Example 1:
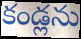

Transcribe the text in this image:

కండ్లను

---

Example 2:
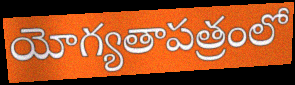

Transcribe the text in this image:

యోగ్యతాపత్రంలో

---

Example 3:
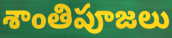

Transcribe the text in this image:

శాంతిపూజలు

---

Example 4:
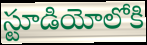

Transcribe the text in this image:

స్టూడియోలోకి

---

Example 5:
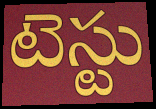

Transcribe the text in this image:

టెస్టు